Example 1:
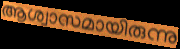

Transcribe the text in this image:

ആശ്വാസമായിരുന്നു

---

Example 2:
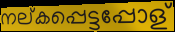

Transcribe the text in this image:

നല്കപ്പെട്ടപ്പോള്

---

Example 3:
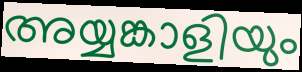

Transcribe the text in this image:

അയ്യങ്കാളിയും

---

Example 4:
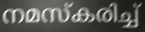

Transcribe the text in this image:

നമസ്‌കരിച്ച്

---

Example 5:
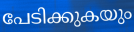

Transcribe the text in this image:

പേടിക്കുകയും